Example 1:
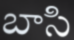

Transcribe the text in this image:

బాసి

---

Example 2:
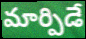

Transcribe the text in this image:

మార్పిడే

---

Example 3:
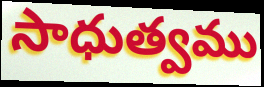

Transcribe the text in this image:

సాధుత్వము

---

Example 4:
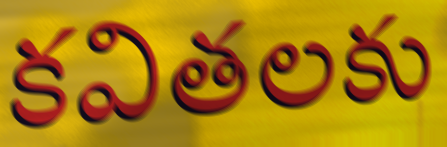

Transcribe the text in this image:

కవితలకు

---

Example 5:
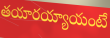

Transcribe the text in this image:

తయారయ్యాయంటే